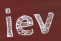
iev